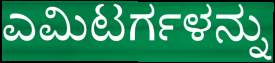
ಎಮಿಟರ್ಗಳನ್ನು